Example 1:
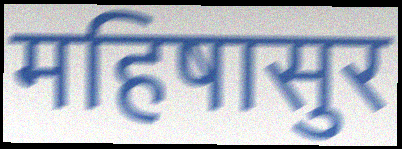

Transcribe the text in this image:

महिषासुर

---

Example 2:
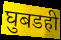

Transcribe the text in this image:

घुबडही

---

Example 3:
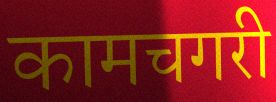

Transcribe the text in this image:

कामचगरी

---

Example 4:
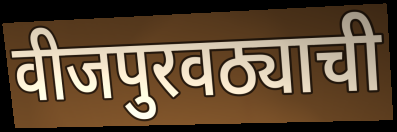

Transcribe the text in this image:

वीजपुरवठ्याची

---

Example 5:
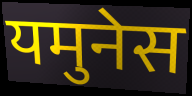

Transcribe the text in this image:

यमुनेस